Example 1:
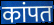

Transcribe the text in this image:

कांपत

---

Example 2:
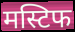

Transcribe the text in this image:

मस्टिफ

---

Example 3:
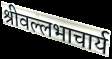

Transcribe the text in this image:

श्रीवल्लभाचार्य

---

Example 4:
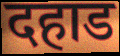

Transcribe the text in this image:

दहाड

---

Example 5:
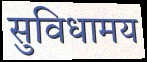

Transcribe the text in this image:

सुविधामय